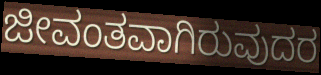
ಜೀವಂತವಾಗಿರುವುದರ